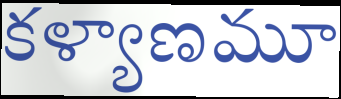
కళ్యాణమూ